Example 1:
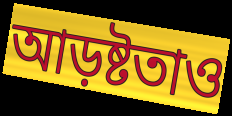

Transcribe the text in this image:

আড়ষ্টতাও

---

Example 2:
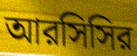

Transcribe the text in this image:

আরসিসির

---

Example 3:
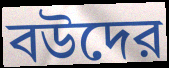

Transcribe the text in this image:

বউদের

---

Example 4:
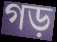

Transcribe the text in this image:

গড়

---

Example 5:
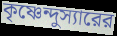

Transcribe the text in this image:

কৃষ্ণেন্দুস্যারের